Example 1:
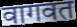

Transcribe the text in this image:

वागवत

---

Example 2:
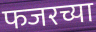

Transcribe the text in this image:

फजरच्या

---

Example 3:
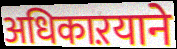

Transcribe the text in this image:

अधिकाऱयाने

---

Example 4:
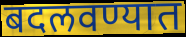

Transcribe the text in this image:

बदलवण्यात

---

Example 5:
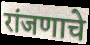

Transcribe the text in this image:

रांजणाचे